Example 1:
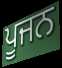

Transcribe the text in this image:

ਪੂਜਨ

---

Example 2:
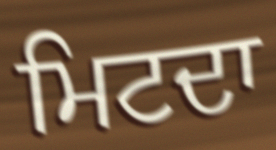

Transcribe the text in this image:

ਮਿਟਦਾ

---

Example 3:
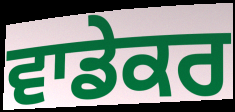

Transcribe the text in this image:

ਵਾਡੇਕਰ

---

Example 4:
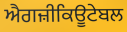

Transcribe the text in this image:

ਐਗਜ਼ੀਕਿਊਟੇਬਲ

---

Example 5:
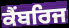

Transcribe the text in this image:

ਕੈਂਬਰਿਜ